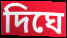
দিঘে